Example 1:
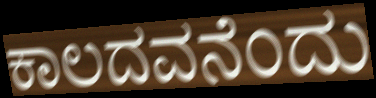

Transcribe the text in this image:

ಕಾಲದವನೆಂದು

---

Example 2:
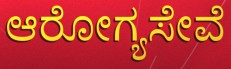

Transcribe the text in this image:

ಆರೋಗ್ಯಸೇವೆ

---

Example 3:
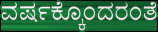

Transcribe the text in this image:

ವರ್ಷಕ್ಕೊಂದರಂತೆ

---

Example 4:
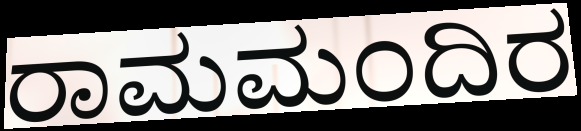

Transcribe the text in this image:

ರಾಮಮಂದಿರ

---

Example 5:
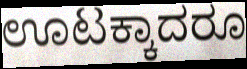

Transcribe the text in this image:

ಊಟಕ್ಕಾದರೂ